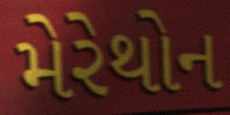
મેરેથોન